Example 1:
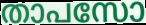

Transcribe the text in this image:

താപസോ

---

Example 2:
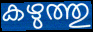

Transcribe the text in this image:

കഴുത്തു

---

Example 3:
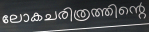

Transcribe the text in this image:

ലോകചരിത്രത്തിന്റെ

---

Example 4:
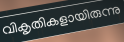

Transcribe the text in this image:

വികൃതികളായിരുന്നു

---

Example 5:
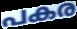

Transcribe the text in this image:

പകര